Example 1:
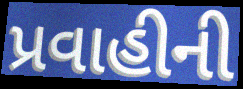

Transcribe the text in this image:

પ્રવાહીની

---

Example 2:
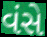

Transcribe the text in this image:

વંસે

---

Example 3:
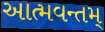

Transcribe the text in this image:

આત્મવન્તમ્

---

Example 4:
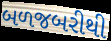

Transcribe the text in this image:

બળજબરીથી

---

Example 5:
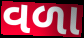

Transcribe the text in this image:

વળા